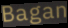
Bagan